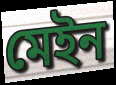
মেইন